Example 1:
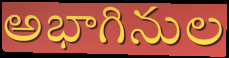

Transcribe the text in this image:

అభాగినుల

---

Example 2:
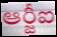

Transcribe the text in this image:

ఆర్జీఐ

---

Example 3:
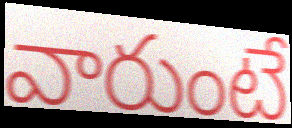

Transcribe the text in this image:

వారుంటే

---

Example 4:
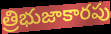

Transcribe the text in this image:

త్రిభుజాకారపు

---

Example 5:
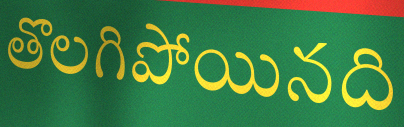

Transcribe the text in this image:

తొలగిపోయినది